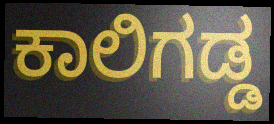
ಕಾಲಿಗಡ್ಡ